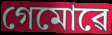
গেমোৱে